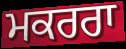
ਮਕਰਰਾ